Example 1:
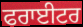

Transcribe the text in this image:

ਫਰਾਈਟਰ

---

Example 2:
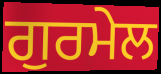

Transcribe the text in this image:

ਗੁਰਮੇਲ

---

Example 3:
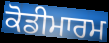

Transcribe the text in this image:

ਕੋਡੀਮਾਰਮ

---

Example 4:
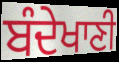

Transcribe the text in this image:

ਬੰਦੇਖਾਣੀ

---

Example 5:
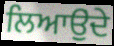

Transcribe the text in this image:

ਲਿਆਉੁਂਦੇ